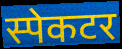
स्पेकटर